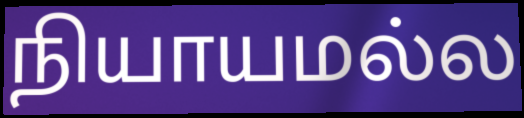
நியாயமல்ல